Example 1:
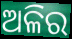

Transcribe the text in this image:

ଅଳିର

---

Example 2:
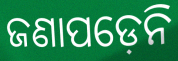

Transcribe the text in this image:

ଜଣାପଡ଼େନି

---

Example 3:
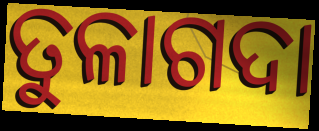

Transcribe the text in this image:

ତୁଳାଗଦା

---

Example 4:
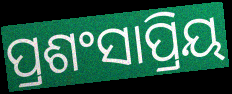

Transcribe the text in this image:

ପ୍ରଶଂସାପ୍ରିୟ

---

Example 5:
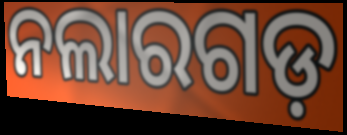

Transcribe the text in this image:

ନଲାରଗଡ଼